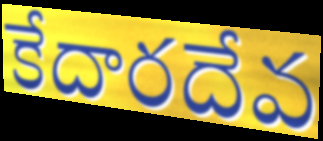
కేదారదేవ